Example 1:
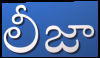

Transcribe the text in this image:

లీజా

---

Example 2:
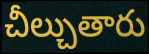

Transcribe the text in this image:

చీల్చుతారు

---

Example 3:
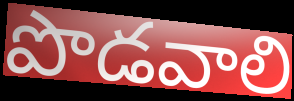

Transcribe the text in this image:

పొడవాలి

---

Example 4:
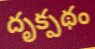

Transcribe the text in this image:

దృక్పథం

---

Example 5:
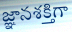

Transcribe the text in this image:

జ్ఞానశక్తిగా